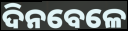
ଦିନବେଳେ